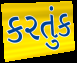
કરતુંક